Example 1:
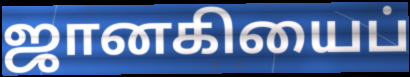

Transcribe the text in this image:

ஜானகியைப்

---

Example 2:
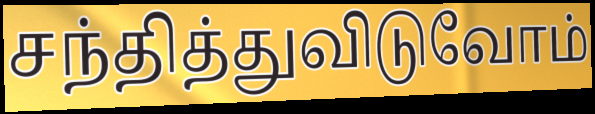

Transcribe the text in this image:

சந்தித்துவிடுவோம்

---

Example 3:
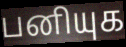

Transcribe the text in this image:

பனியுக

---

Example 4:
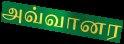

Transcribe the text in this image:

அவ்வானர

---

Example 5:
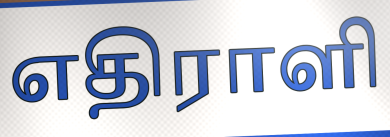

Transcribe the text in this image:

எதிராளி